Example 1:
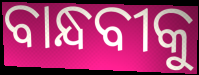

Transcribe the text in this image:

ବାନ୍ଧବୀକୁ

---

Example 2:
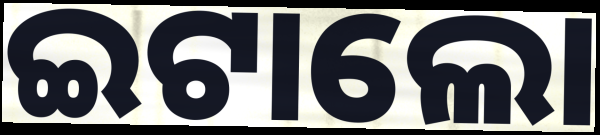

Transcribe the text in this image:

ଇଟାଲୋ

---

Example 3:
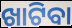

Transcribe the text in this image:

ଖାଟିବା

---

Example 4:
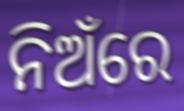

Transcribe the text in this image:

ନିଅଁରେ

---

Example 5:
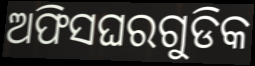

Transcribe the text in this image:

ଅଫିସଘରଗୁଡିକ